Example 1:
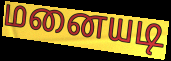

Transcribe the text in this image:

மனையடி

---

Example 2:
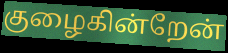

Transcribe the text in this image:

குழைகின்றேன்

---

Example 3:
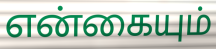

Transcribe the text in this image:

என்கையும்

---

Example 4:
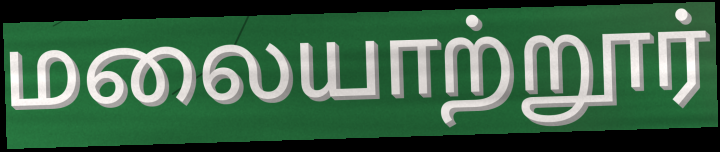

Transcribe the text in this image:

மலையாற்றூர்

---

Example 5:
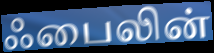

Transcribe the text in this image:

ஃபைலின்